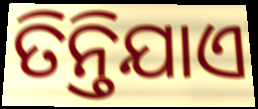
ତିନ୍ତିଯାଏ